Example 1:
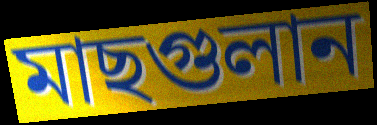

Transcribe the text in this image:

মাছগুলান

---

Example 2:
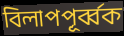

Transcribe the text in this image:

বিলাপপূর্ব্বক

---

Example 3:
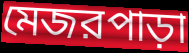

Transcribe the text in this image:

মেজরপাড়া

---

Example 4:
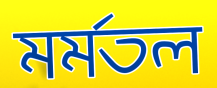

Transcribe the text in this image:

মর্মতল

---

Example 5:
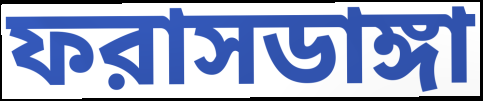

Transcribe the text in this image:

ফরাসডাঙ্গা